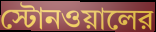
স্টোনওয়ালের